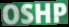
OSHP